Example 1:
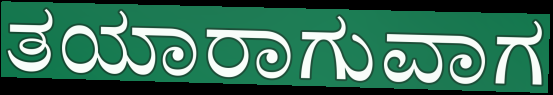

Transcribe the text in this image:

ತಯಾರಾಗುವಾಗ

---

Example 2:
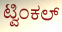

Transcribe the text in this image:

ಟ್ವಿಂಕಲ್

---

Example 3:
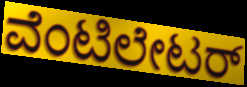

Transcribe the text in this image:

ವೆಂಟಿಲೇಟರ್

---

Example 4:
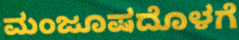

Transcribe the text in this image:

ಮಂಜೂಷದೊಳಗೆ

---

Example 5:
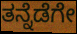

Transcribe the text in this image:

ತನ್ನೆಡೆಗೇ